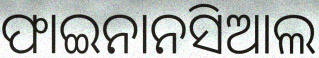
ଫାଇନାନସିଆଲ